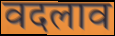
वदलाव